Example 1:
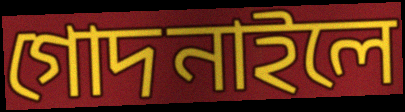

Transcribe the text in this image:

গোদনাইলে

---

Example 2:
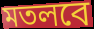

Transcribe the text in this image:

মতলবে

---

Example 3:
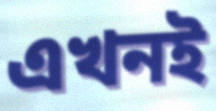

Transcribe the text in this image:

এখনই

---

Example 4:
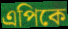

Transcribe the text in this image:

এপিকে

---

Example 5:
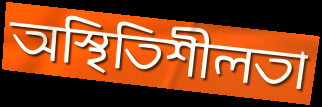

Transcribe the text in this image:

অস্থিতিশীলতা